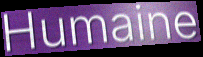
Humaine